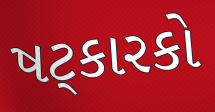
ષટ્કારકો